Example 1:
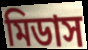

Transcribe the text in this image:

মিডাস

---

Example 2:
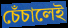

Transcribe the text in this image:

চেঁচালেই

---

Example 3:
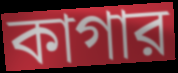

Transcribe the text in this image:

কাগার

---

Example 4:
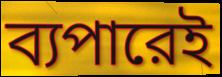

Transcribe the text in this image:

ব্যপারেই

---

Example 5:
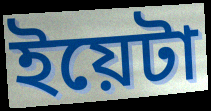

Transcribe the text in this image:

ইয়েটা